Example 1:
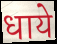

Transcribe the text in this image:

धाये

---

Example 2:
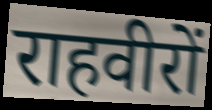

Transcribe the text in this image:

राहवीरों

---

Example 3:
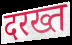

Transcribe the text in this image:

दरख्त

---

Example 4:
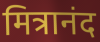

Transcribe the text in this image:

मित्रानंद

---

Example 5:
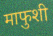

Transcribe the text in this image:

माफुशी